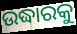
ଉଦ୍ଧାରକୁ